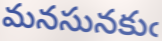
మనసునకుఁ